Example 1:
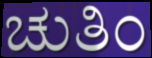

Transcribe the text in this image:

ಚುತಿಂ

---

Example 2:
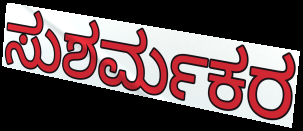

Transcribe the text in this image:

ಸುಶರ್ಮಕರ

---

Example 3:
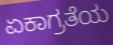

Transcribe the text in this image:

ಏಕಾಗ್ರತೆಯ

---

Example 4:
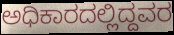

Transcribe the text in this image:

ಅಧಿಕಾರದಲ್ಲಿದ್ದವರ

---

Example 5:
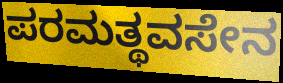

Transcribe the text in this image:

ಪರಮತ್ಥವಸೇನ